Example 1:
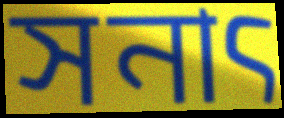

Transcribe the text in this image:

সনাৎ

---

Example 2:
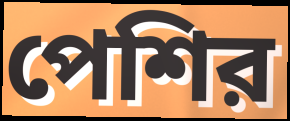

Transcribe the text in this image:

পেশির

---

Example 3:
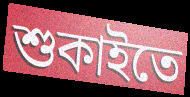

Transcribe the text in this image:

শুকাইতে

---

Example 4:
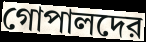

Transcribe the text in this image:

গোপালদের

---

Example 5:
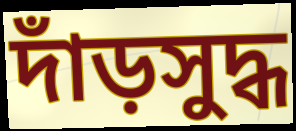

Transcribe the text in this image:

দাঁড়সুদ্ধ